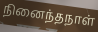
நினைந்தநாள்